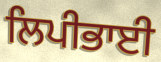
ਲਿਪੀਭਾਈ